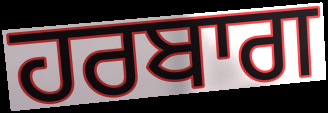
ਹਰਬਾਗ